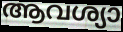
ആവശ്യാ